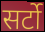
सर्टो